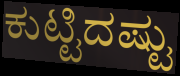
ಕುಟ್ಟಿದಷ್ಟು